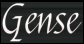
Gense